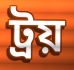
ট্ৰয়